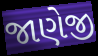
જાણેજી